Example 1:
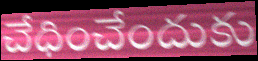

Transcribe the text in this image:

చేధించేందుకు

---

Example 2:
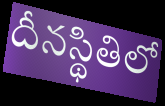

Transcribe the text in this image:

దీనస్థితిలో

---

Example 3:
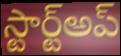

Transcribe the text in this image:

స్టార్ట్అప్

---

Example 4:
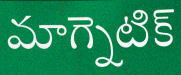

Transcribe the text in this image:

మాగ్నెటిక్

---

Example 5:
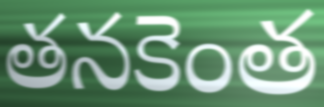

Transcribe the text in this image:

తనకెంత